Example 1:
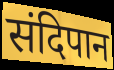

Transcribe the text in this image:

संदिपान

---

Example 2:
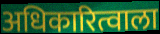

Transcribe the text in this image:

अधिकारित्वाला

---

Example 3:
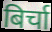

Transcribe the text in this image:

बिर्चा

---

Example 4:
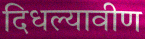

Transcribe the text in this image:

दिधल्यावीण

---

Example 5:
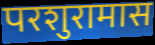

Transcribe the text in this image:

परशुरामास